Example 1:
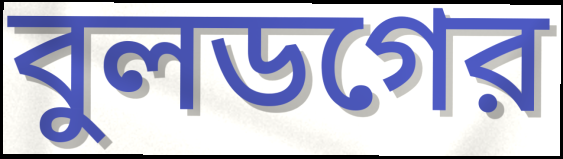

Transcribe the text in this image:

বুলডগের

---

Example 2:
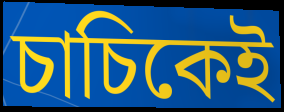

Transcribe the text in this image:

চাচিকেই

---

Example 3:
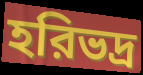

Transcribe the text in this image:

হরিভদ্র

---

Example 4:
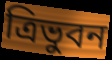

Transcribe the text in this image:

ত্রিভুবন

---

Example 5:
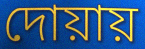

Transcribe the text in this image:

দোয়ায়